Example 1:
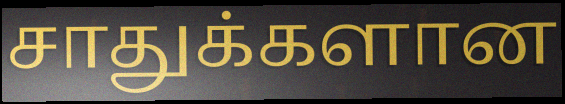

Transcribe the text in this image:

சாதுக்களான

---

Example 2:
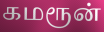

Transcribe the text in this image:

கமரூன்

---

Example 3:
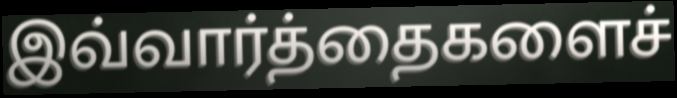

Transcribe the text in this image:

இவ்வார்த்தைகளைச்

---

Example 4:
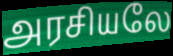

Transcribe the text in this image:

அரசியலே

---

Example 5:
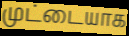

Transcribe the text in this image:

முட்டையாக